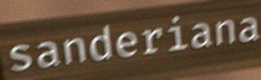
sanderiana